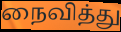
நைவித்து